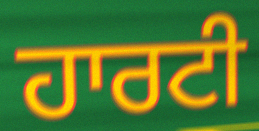
ਹਾਰਟੀ